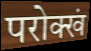
परोक्खं